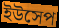
ইউসেপ